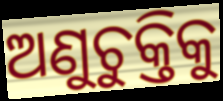
ଅଣୁଚୁକ୍ତିକୁ